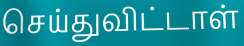
செய்துவிட்டாள்